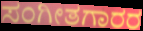
ಸಂಗೀತಗಾರರ